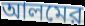
আলমের